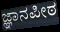
ಜ್ಞಾನಪೀಠ